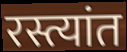
रस्त्यांत